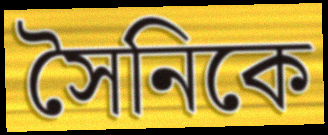
সৈনিকে